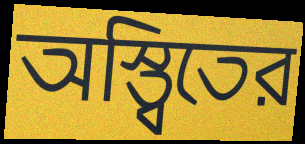
অস্ত্বিতের